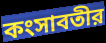
কংসাবতীর